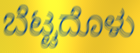
ಬೆಟ್ಟದೊಳು